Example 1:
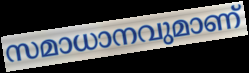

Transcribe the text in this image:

സമാധാനവുമാണ്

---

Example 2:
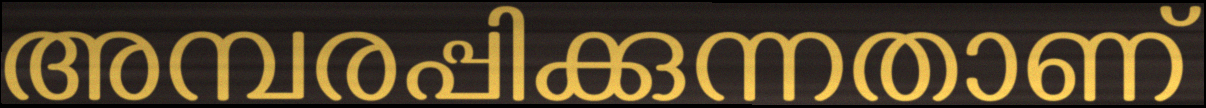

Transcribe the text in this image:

അമ്പരപ്പിക്കുന്നതാണ്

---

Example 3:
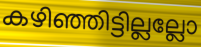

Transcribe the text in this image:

കഴിഞ്ഞിട്ടില്ലല്ലോ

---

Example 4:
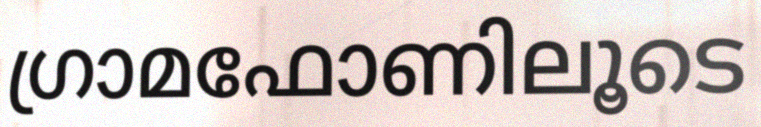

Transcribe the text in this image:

ഗ്രാമഫോണിലൂടെ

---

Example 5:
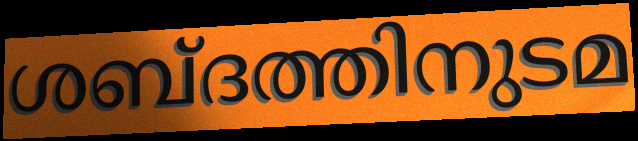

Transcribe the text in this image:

ശബ്ദത്തിനുടമ